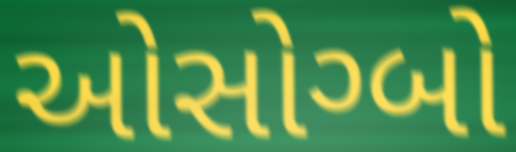
ઓસોગ્બો